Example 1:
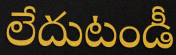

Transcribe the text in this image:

లేదుటండీ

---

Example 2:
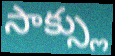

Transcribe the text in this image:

సాక్స్లు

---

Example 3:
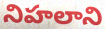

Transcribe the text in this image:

నిహలాని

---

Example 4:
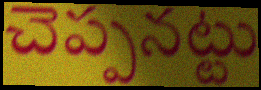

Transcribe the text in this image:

చెప్పనట్టు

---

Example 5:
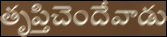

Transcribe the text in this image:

తృప్తిచెందేవాడు